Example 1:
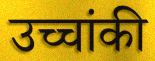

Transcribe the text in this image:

उच्चांकी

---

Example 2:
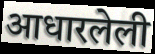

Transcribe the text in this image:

आधारलेली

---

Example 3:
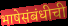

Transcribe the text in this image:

भाषेसंबंधीची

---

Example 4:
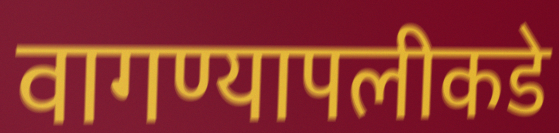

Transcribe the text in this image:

वागण्यापलीकडे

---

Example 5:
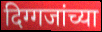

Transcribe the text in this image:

दिग्गजांच्या